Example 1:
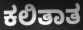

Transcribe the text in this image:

ಕಲಿತಾತ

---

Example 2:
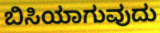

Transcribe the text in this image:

ಬಿಸಿಯಾಗುವುದು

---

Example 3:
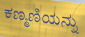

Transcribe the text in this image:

ಕಣ್ಮಣಿಯನ್ನು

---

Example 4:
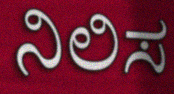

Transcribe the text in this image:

ನಿಲಿಸ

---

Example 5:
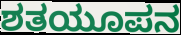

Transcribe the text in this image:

ಶತಯೂಪನ